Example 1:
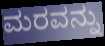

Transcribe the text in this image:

ಮರವನ್ನು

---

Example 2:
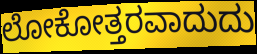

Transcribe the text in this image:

ಲೋಕೋತ್ತರವಾದುದು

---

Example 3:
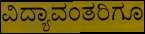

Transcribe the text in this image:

ವಿದ್ಯಾವಂತರಿಗೂ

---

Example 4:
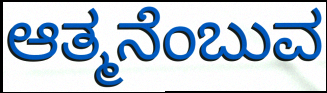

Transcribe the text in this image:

ಆತ್ಮನೆಂಬುವ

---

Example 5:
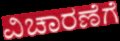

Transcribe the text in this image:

ವಿಚಾರಣೆಗೆ